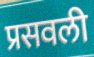
प्रसवली